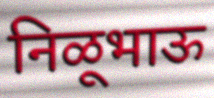
निळूभाऊ